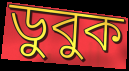
ডুবুক